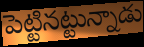
పెట్టినట్టున్నాడు